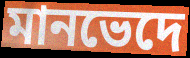
মানভেদে